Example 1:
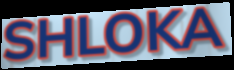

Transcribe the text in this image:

SHLOKA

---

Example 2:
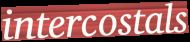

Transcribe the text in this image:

intercostals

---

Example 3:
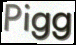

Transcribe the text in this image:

Pigg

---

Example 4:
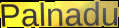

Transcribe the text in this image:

Palnadu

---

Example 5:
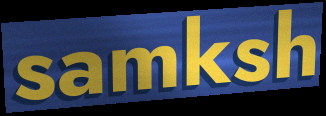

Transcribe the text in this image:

samksh